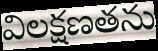
విలక్షణతను